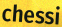
chessi